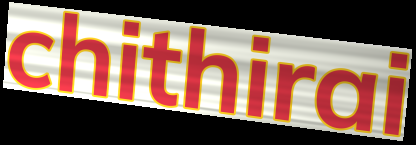
chithirai